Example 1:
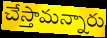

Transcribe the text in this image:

చేస్తామన్నారు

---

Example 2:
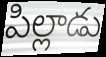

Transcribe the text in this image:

పిల్లాడు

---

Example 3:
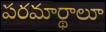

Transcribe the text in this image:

పరమార్థాలూ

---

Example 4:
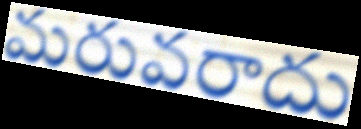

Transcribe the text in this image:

మరువరాదు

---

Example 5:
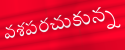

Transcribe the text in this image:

వశపరచుకున్న